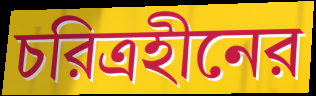
চরিত্রহীনের